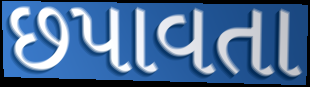
છપાવતા